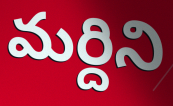
మర్దిని